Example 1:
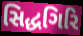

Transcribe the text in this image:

સિદ્ધગિરિ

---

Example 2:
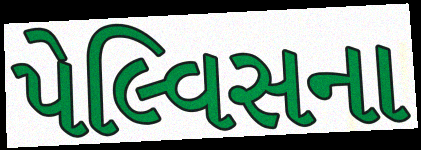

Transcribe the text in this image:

પેલ્વિસના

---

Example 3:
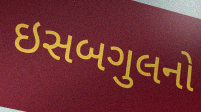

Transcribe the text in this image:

ઇસબગુલનો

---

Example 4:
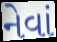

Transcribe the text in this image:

નેવાં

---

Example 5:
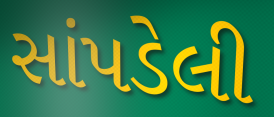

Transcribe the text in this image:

સાંપડેલી